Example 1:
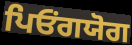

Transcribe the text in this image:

ਪਿਓਂਗਯੋਗ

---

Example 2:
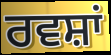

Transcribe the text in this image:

ਰਵਸ਼ਾਂ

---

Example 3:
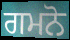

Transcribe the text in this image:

ਗਮਨੋ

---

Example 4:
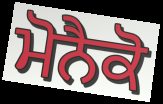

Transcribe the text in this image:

ਮੋਨੈਕੋ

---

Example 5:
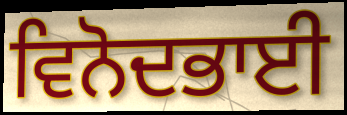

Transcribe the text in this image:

ਵਿਨੋਦਭਾਈ